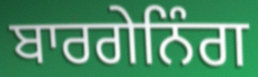
ਬਾਰਗੇਨਿੰਗ